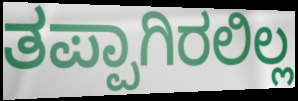
ತಪ್ಪಾಗಿರಲಿಲ್ಲ